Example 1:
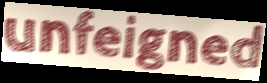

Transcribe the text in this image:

unfeigned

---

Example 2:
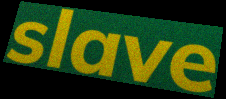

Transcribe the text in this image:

slave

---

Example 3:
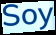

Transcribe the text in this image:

Soy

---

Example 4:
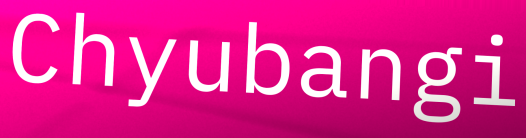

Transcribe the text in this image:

Chyubangi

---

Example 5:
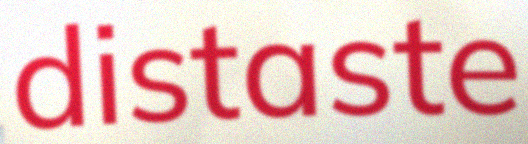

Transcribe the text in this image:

distaste